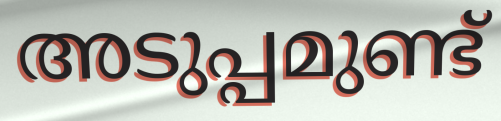
അടുപ്പമുണ്ട്